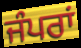
ਜੰਪਰਾਂ